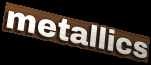
metallics